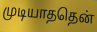
முடியாததென்